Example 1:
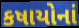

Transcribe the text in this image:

કષાયોનાં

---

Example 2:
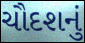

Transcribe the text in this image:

ચૌદશનું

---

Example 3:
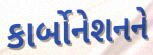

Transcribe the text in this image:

કાર્બોનેશનને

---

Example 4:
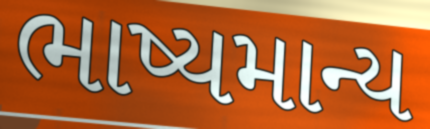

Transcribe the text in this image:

ભાષ્યમાન્ય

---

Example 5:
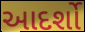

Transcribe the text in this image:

આદર્શો